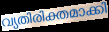
വ്യതിരിക്തമാക്കി